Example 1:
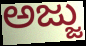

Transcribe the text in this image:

ಅಜ್ಜು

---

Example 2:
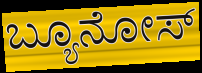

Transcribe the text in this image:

ಬ್ಯೂನೋಸ್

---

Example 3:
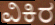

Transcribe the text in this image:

ವಿಕಿರ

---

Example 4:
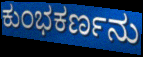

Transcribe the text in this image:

ಕುಂಭಕರ್ಣನು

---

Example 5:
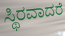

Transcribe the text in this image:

ಸ್ಥಿರವಾದರೆ